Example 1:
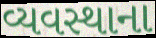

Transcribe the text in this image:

વ્યવસ્થાના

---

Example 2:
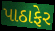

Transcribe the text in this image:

પાઠાફેર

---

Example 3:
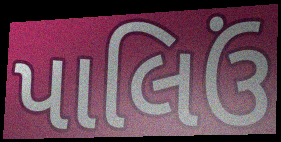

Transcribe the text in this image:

પાલિઉં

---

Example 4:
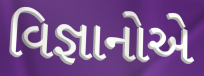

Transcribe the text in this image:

વિજ્ઞાનોએ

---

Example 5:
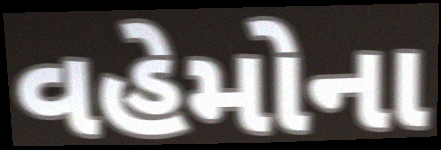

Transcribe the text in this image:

વહેમોના